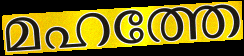
മഹത്തേ